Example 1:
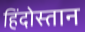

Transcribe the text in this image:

हिंदोस्तान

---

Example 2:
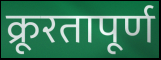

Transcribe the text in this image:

क्रूरतापूर्ण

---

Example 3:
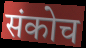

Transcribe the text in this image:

संकोच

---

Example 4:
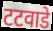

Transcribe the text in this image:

टटवाडे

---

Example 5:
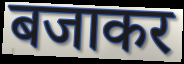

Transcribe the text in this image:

बजाकर